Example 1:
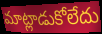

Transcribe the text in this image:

మాట్లాడుకోలేదు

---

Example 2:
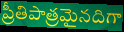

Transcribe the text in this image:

ప్రీతిపాత్రమైనదిగా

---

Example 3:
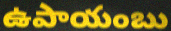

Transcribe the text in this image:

ఉపాయంబు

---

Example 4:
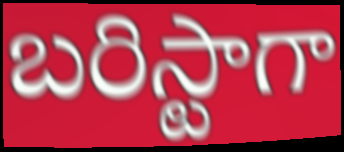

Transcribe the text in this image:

బరిస్టాగా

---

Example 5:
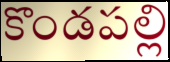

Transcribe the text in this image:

కొండపల్లి